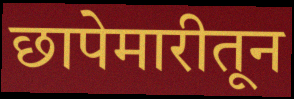
छापेमारीतून